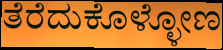
ತೆರೆದುಕೊಳ್ಳೋಣ